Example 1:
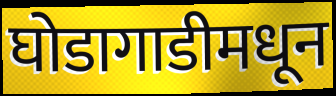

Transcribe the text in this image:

घोडागाडीमधून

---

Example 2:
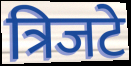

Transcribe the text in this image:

त्रिजटे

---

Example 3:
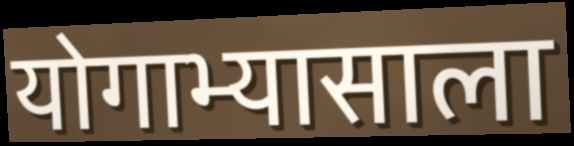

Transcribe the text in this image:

योगाभ्यासाला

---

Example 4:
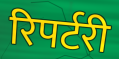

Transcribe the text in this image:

रिपर्टरी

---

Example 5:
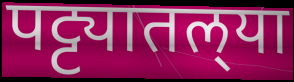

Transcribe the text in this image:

पट्ट्यातल्या